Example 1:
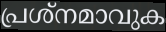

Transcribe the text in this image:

പ്രശ്നമാവുക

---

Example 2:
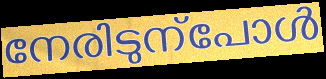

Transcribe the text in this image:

നേരിടുന്പോൾ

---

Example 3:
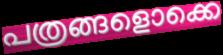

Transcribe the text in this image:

പത്രങ്ങളൊക്കെ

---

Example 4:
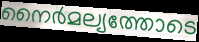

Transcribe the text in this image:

നൈർമല്യത്തോടെ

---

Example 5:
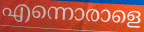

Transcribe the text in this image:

എന്നൊരാളെ